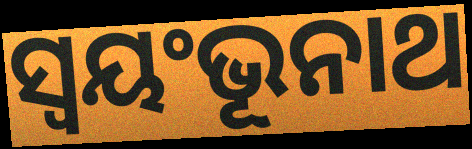
ସ୍ଵୟଂଭୂନାଥ